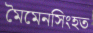
মৈমেনসিংহত